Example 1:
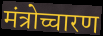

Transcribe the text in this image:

मंत्रोच्चारण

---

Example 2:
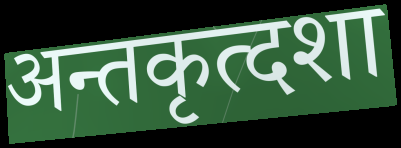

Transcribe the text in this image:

अन्तकृत्दशा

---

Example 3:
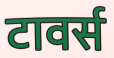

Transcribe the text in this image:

टावर्स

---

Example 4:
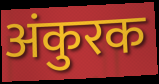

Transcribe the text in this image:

अंकुरक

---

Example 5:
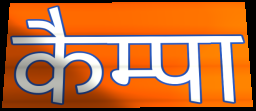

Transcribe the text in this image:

कैम्पा